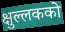
क्षुल्लकको